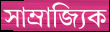
সাম্ৰাজ্যিক